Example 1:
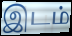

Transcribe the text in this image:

இடம்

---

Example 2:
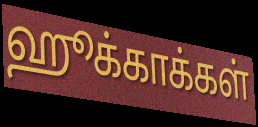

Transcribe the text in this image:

ஹூக்காக்கள்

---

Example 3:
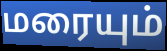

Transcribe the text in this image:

மரையும்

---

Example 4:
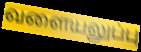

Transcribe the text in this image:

வளையலுப்பு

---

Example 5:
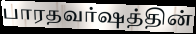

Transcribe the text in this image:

பாரதவர்ஷத்தின்